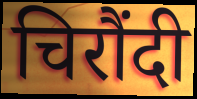
चिरौंदी